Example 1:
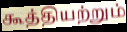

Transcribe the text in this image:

கூத்தியற்றும்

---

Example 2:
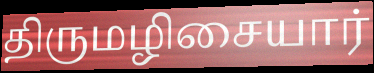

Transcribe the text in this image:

திருமழிசையார்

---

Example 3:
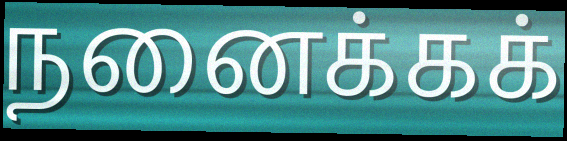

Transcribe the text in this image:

நனைக்கக்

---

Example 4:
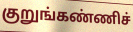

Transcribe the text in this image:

குறுங்கண்ணிச்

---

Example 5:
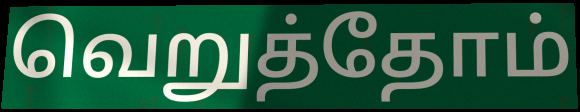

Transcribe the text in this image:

வெறுத்தோம்